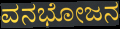
ವನಭೋಜನ